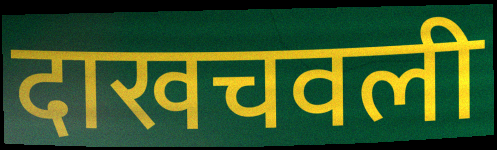
दाखचवली